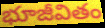
భూజీవితం